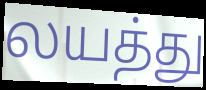
லயத்து